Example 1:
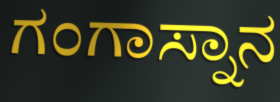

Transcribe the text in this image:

ಗಂಗಾಸ್ನಾನ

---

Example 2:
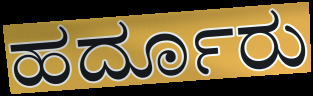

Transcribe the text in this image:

ಹರ್ದೂರು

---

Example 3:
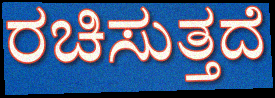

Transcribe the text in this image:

ರಚಿಸುತ್ತದೆ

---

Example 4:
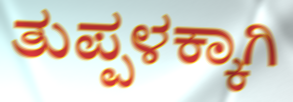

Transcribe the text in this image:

ತುಪ್ಪಳಕ್ಕಾಗಿ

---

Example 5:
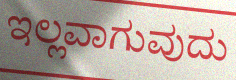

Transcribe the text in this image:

ಇಲ್ಲವಾಗುವುದು